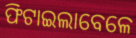
ଫିଟାଇଲାବେଳେ